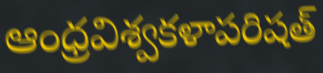
ఆంధ్రవిశ్వకళాపరిషత్